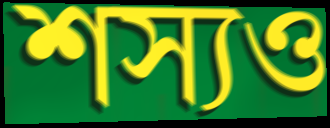
শস্যও